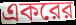
একরের